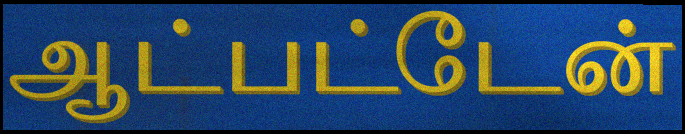
ஆட்பட்டேன்